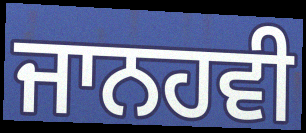
ਜਾਨਹਵੀ